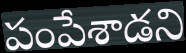
పంపేశాడని